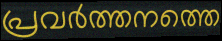
പ്രവർത്തനത്തെ